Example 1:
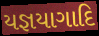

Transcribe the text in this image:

યજ્ઞયાગાદિ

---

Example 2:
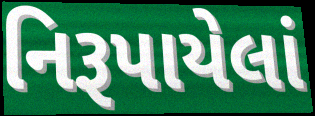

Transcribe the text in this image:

નિરૂપાયેલાં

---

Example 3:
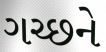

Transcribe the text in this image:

ગચ્છને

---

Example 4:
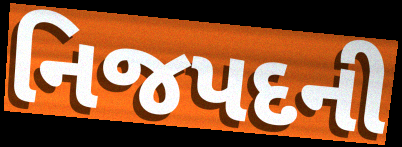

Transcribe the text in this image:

નિજપદની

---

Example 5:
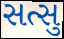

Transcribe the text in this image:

સત્સુ